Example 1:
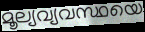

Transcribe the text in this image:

മൂല്യവ്യവസ്ഥയെ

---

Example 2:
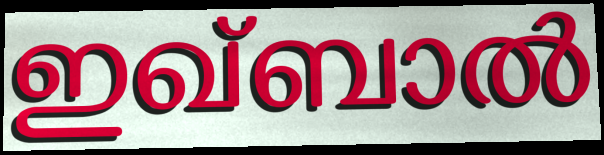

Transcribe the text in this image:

ഇഖ്ബാൽ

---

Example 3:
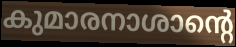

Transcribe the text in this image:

കുമാരനാശാന്റെ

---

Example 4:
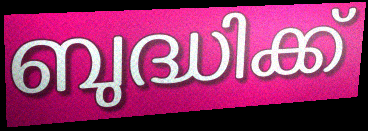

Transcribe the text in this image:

ബുദ്ധിക്ക്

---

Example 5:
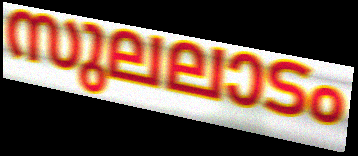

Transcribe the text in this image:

സുലലാടം